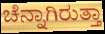
ಚೆನ್ನಾಗಿರುತ್ತಾ